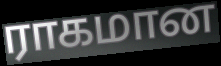
ராகமான